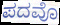
ಪದವೊ